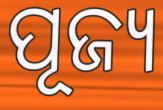
ପୂଜ୍ୟ